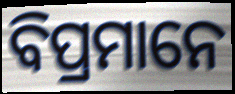
ବିପ୍ରମାନେ